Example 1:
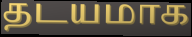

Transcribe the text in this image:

தடயமாக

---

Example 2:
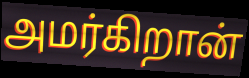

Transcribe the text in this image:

அமர்கிறான்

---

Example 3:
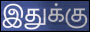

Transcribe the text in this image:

இதுக்கு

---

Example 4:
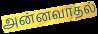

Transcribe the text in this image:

அன்னவாதல்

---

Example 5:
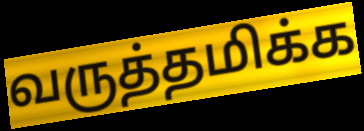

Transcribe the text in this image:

வருத்தமிக்க